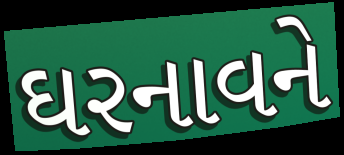
ઘરનાવને